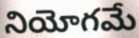
నియోగమే